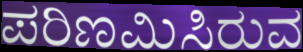
ಪರಿಣಮಿಸಿರುವ